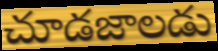
చూడజాలడు